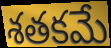
శతకమే